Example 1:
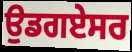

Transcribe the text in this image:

ਉਡਗਏਸਰ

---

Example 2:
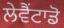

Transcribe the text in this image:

ਲੇਵੈਂਟਾਡੋ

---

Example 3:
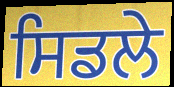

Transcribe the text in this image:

ਸਿਡਲੇ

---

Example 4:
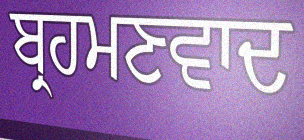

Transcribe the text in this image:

ਬ੍ਰਹਮਣਵਾਦ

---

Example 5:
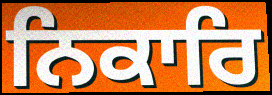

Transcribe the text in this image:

ਨਿਕਾਰਿ